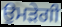
ਉਮੜੇਗੀ